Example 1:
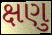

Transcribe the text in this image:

ક્ષણુ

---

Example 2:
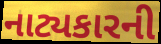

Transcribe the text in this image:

નાટ્યકારની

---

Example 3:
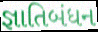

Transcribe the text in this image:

જ્ઞાતિબંધન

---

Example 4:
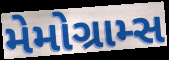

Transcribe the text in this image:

મેમોગ્રામ્સ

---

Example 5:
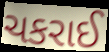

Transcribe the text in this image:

ચકરાઈ